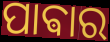
ପାଵାର